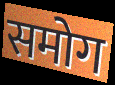
समोग